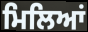
ਮਿਲਿਆਂ